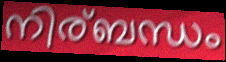
നിര്ബന്ധം